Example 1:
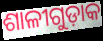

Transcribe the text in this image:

ଶାଳୀଗୁଡ଼ାକ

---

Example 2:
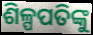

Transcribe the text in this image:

ଶିଳ୍ପପତିଙ୍କୁ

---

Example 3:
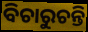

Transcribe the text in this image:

ବିଚାରୁଚନ୍ତି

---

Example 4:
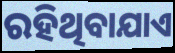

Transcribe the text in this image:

ରହିଥିବାଯାଏ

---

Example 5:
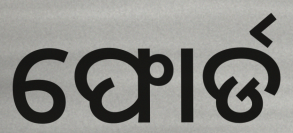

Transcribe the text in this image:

ଫୋର୍ଡ